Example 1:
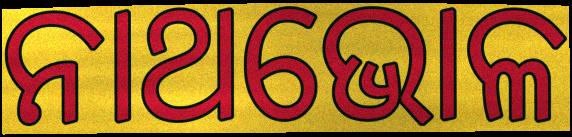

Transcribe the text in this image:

ନାଥଭୋଳ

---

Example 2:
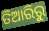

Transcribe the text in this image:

ତିଆରିରୁ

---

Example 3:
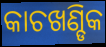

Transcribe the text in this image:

କାଚଖଣ୍ଡିକ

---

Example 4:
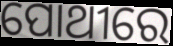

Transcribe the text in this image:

ପୋଥୀରେ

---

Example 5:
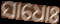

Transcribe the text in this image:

ସାଧୋଃ